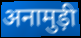
अनामुड़ी